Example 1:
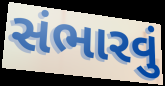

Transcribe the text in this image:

સંભારવું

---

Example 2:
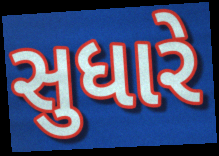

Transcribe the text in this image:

સુધારે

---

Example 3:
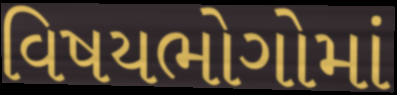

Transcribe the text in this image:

વિષયભોગોમાં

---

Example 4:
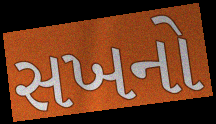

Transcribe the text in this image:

સખનો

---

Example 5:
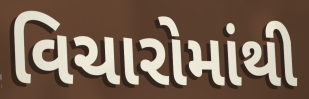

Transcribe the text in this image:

વિચારોમાંથી